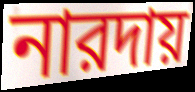
নারদায়